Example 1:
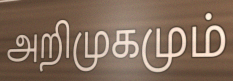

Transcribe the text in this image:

அறிமுகமும்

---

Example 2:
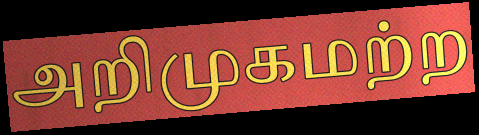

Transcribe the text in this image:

அறிமுகமற்ற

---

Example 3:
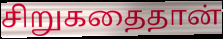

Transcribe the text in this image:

சிறுகதைதான்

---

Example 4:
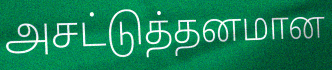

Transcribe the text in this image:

அசட்டுத்தனமான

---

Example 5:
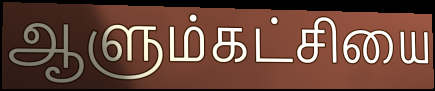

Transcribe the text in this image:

ஆளும்கட்சியை